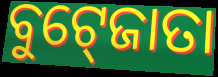
ବୁଟ୍‍ଜୋତା